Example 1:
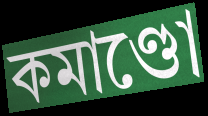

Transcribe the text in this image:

কমাণ্ডো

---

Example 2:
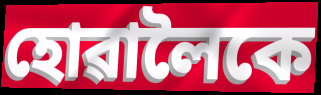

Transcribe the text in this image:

হোৱালৈকে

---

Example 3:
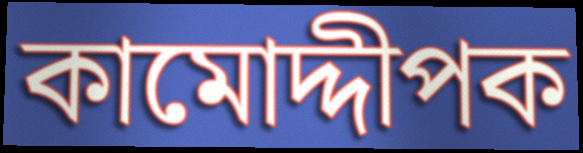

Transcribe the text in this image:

কামোদ্দীপক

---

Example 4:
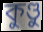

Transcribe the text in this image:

কুণ্ডু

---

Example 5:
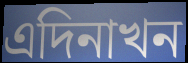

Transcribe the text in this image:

এদিনাখন